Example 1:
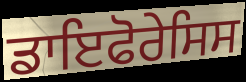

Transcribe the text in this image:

ਡਾਇਫੋਰੇਸਿਸ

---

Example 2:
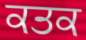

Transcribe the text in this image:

ਕਤਕ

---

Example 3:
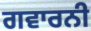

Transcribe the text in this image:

ਗਵਾਰਨੀ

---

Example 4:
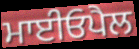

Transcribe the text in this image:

ਮਾਈਓਪੈਲ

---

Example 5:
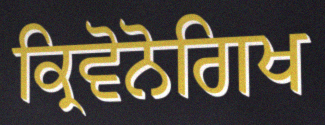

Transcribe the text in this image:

ਕ੍ਰਿਵੋਨੋਗਿਖ